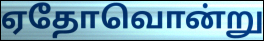
ஏதோவொன்று